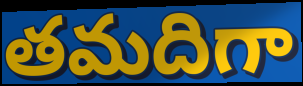
తమదిగా